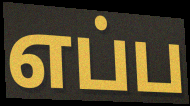
எப்ப